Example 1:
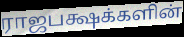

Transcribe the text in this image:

ராஜபக்ஷக்களின்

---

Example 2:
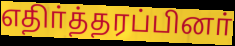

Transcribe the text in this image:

எதிர்த்தரப்பினர்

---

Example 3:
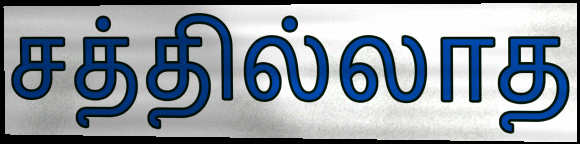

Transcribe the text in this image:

சத்தில்லாத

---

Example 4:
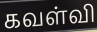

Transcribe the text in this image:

கவள்வி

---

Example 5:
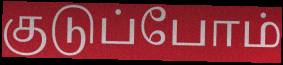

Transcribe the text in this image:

குடுப்போம்